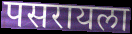
पसरायला